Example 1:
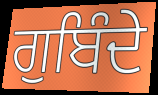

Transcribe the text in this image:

ਗੁਬਿੰਦੇ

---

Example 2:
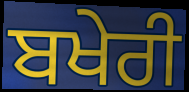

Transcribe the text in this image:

ਬਖੇਰੀ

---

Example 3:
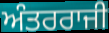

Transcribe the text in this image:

ਅੰਤਰਰਾਜੀ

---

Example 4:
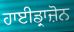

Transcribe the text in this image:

ਹਾਈਡ੍ਰਾਜ਼ੋਨ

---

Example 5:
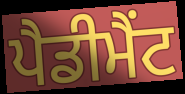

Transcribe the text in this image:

ਪੈਡੀਮੈਂਟ